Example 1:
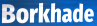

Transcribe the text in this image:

Borkhade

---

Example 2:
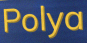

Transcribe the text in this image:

Polya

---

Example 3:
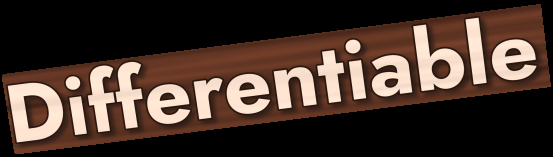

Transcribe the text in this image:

Differentiable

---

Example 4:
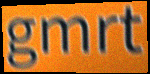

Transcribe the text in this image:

gmrt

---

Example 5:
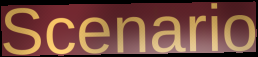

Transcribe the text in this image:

Scenario